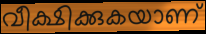
വീക്ഷിക്കുകയാണ്